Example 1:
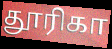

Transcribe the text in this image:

தூரிகா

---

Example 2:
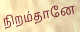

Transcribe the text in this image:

நிறம்தானே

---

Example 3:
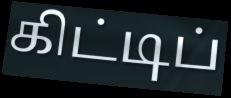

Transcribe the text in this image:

கிட்டிப்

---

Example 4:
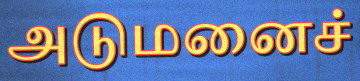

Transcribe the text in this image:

அடுமனைச்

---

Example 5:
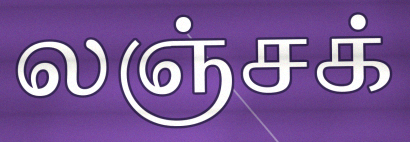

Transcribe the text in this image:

லஞ்சக்